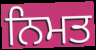
ਨਿਮਤ